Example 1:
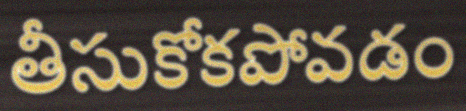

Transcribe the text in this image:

తీసుకోకపోవడం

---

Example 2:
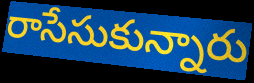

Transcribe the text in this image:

రాసేసుకున్నారు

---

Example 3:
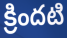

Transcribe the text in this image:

క్రిందటి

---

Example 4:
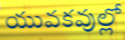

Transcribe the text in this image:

యువకవుల్లో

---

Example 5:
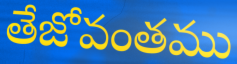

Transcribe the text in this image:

తేజోవంతము